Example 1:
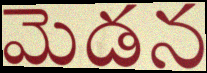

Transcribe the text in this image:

మెడన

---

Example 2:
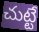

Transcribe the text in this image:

చుట్టే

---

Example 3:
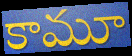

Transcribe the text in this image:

కామూ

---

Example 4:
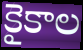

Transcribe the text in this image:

కైకాల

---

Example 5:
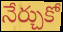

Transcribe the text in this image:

నేర్చుకో